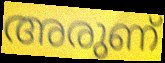
അരുണ്